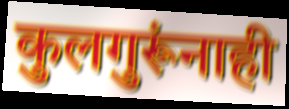
कुलगुरूंनाही